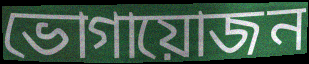
ভোগায়োজন